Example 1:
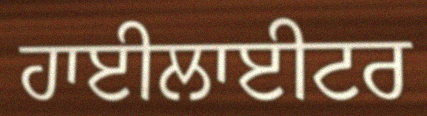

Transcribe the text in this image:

ਹਾਈਲਾਈਟਰ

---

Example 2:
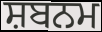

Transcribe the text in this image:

ਸ਼ਬਨਮ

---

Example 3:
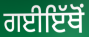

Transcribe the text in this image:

ਗਈਇੱਥੋਂ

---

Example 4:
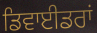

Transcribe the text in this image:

ਡਿਵਾਈਡਰਾਂ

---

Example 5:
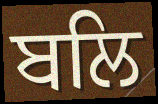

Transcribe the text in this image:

ਬਲਿ